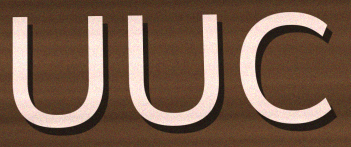
UUC